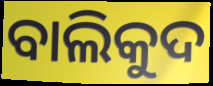
ବାଲିକୁଦ